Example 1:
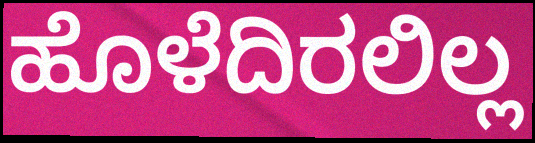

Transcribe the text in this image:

ಹೊಳೆದಿರಲಿಲ್ಲ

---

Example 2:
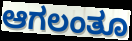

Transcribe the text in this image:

ಆಗಲಂತೂ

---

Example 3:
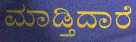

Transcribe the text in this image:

ಮಾಡ್ತಿದಾರೆ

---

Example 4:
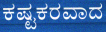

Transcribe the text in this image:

ಕಷ್ಟಕರವಾದ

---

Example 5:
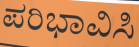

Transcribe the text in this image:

ಪರಿಭಾವಿಸಿ